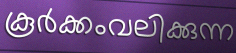
കൂർക്കംവലിക്കുന്ന